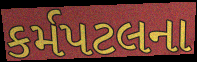
કર્મપટલના